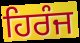
ਹਿਰੰਜ